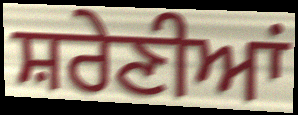
ਸ਼ਰੇਣੀਆਂ